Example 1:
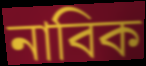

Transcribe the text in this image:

নাবিক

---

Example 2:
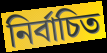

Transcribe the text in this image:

নির্বাচিত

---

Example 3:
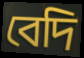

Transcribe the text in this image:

বেদি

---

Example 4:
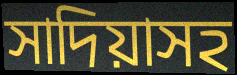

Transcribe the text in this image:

সাদিয়াসহ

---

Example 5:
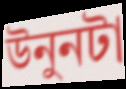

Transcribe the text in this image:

উনুনটা